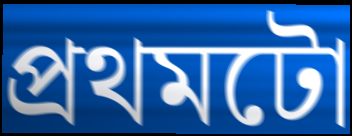
প্ৰথমটো